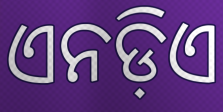
ଏନଡ଼ିଏ